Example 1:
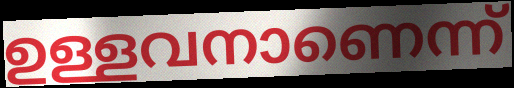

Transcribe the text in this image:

ഉള്ളവനാണെന്ന്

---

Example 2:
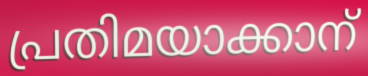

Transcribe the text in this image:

പ്രതിമയാക്കാന്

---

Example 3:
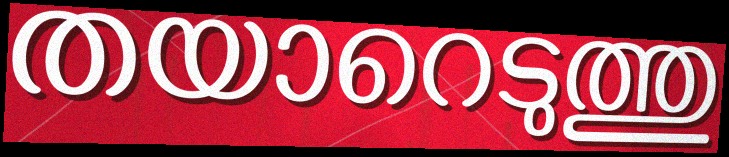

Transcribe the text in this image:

തയാറെടുത്തു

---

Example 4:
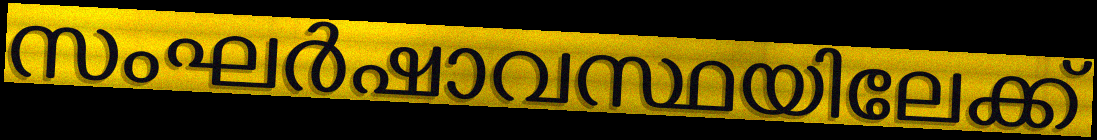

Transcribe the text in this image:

സംഘർഷാവസ്ഥയിലേക്ക്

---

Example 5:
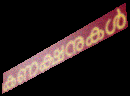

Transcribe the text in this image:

കണക്ഷനുകൾ